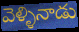
వెళ్ళినాడు